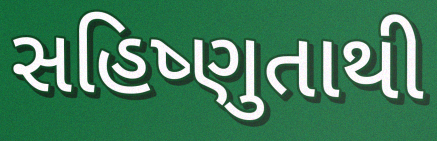
સહિષ્ણુતાથી